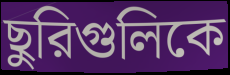
ছুরিগুলিকে